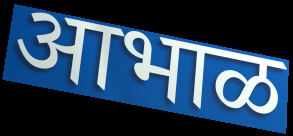
आभाळ